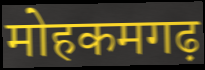
मोहकमगढ़